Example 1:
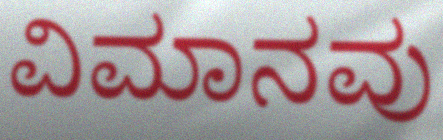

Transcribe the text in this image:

ವಿಮಾನವು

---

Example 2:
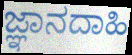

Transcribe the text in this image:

ಜ್ಞಾನದಾಹಿ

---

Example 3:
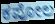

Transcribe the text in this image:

ಕಪೋಲ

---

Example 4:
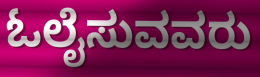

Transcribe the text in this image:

ಓಲೈಸುವವರು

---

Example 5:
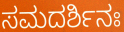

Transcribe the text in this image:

ಸಮದರ್ಶಿನಃ